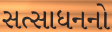
સત્સાધનનો